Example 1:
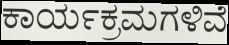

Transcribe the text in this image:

ಕಾರ್ಯಕ್ರಮಗಳಿವೆ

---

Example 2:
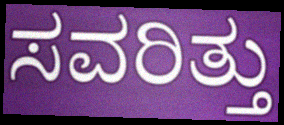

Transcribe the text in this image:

ಸವರಿತ್ತು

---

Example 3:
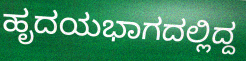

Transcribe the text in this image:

ಹೃದಯಭಾಗದಲ್ಲಿದ್ದ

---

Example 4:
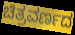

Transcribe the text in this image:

ಚಿತ್ರವರ್ಣದ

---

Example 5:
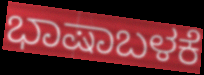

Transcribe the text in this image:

ಭಾಷಾಬಳಕೆ